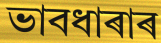
ভাবধাৰাৰ